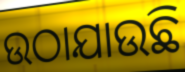
ଉଠାଯାଉଛି